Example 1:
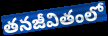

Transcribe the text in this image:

తనజీవితంలో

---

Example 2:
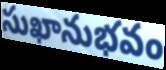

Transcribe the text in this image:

సుఖానుభవం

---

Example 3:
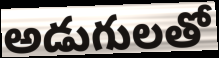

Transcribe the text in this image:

అడుగులతో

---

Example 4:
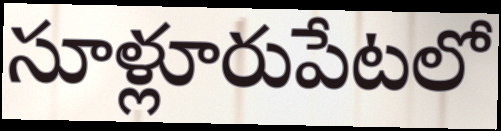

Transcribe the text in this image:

సూళ్లూరుపేటలో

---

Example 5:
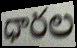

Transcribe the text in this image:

ధారల